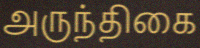
அருந்திகை